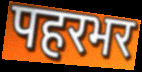
पहरभर